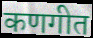
कणगीत